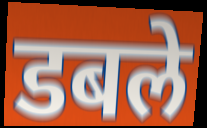
डबले